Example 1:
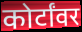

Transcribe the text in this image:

कोर्टांवर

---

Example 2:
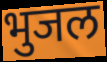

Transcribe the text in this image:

भुजल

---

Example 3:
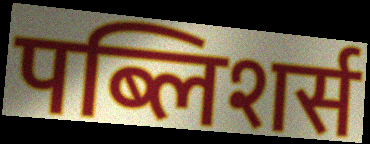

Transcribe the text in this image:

पब्लिशर्स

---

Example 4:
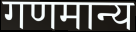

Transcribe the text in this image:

गणमान्य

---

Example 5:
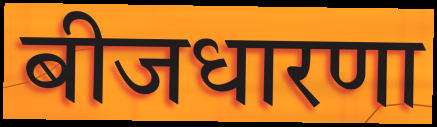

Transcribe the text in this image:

बीजधारणा